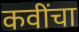
कवींचा